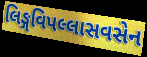
લિઙ્ગવિપલ્લાસવસેન